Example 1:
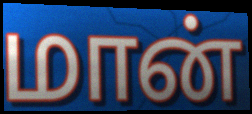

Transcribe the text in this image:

மான்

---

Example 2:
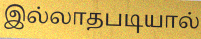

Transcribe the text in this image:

இல்லாதபடியால்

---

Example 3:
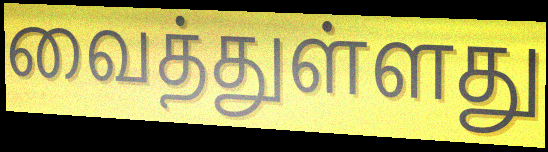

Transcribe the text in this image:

வைத்துள்ளது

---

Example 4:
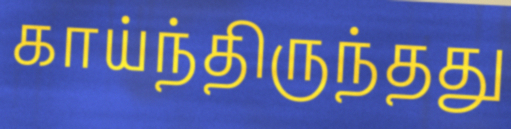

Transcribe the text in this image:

காய்ந்திருந்தது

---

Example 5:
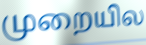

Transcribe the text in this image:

முறையில